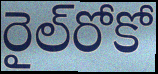
రైల్‌రోకో